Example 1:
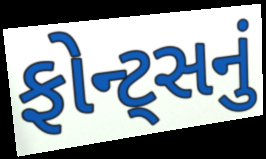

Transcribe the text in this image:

ફોન્ટ્સનું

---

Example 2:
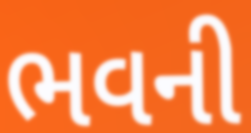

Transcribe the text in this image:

ભવની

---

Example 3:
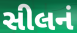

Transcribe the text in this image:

સીલનં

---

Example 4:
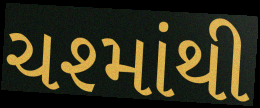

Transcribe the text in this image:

ચશ્માંથી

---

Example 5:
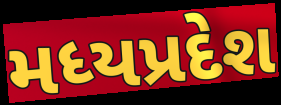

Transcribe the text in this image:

મધ્યપ્રદેશ